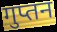
गुप्तन